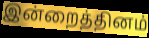
இன்றைத்தினம்